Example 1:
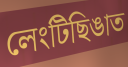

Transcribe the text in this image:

লেংটিছিঙাত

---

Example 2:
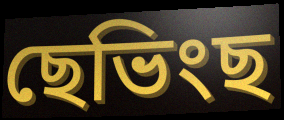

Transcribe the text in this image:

ছেভিংছ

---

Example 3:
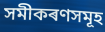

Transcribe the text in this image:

সমীকৰণসমূহ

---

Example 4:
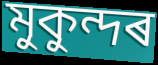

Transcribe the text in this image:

মুকুন্দৰ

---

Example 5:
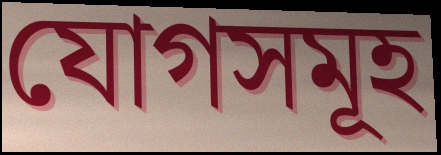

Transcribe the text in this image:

যোগসমূহ